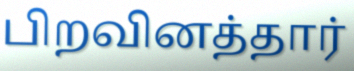
பிறவினத்தார்